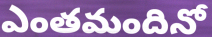
ఎంతమందినో